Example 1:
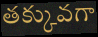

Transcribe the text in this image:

తక్కువగా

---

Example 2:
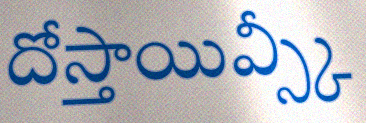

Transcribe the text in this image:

దోస్తాయివ్స్కీ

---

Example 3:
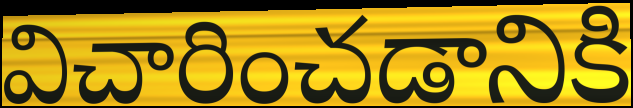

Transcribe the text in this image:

విచారించడానికి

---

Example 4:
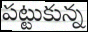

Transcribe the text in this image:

పట్టుకున్న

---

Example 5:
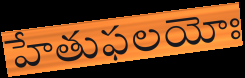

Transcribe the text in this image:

హేతుఫలయోః